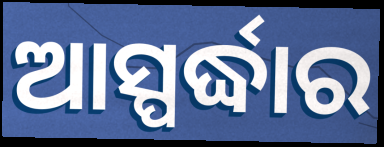
ଆସ୍ପର୍ଦ୍ଧାର